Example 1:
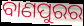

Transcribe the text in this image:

ବାଣପୁରର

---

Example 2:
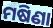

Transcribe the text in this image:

ମଷିଣା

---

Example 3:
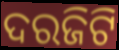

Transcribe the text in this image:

ଦରଜିଟି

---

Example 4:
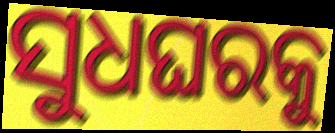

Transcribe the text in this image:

ସୁଧଘରକୁ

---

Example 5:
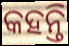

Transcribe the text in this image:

କହନ୍ତି